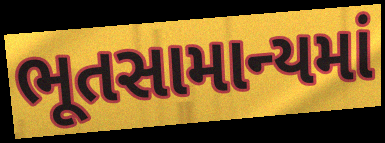
ભૂતસામાન્યમાં